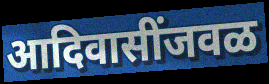
आदिवासींजवळ